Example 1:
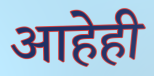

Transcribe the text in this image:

आहेही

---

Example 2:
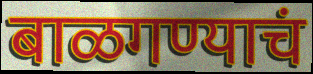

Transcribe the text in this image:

बाळगण्याचं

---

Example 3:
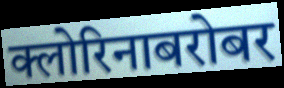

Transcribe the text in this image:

क्लोरिनाबरोबर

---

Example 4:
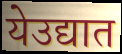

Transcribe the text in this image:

येउद्यात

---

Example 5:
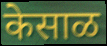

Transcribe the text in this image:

केसाळ